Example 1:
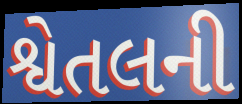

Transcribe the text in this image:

શ્વેતલની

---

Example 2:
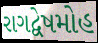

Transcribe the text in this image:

રાગદ્વેષમોહ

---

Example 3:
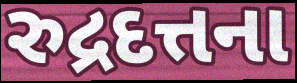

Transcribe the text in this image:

રુદ્રદત્તના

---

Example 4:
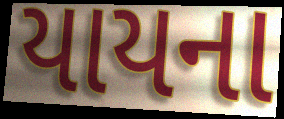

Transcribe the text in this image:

યાયના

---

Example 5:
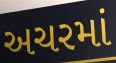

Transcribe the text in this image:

અચરમાં